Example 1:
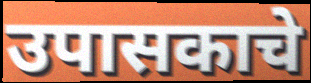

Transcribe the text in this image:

उपासकाचे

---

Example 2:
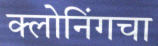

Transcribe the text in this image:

क्लोनिंगचा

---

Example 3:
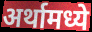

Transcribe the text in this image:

अर्थामध्ये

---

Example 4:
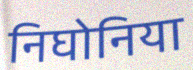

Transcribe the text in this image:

निघोनिया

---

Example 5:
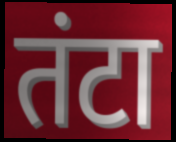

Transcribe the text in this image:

तंटा